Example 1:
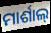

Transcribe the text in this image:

ମାର୍ଶାଲ୍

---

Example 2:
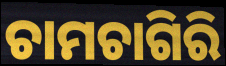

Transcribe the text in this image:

ଚାମଚାଗିରି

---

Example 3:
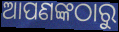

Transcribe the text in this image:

ଆପଣଙ୍କଠାରୁ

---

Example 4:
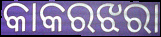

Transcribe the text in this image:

କାକରଝରା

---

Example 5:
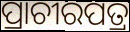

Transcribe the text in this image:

ପ୍ରାଚୀରପତ୍ର